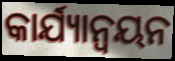
କାର୍ଯ୍ୟାନ୍ଵୟନ